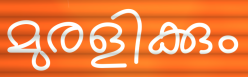
മുരളിക്കും